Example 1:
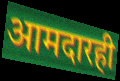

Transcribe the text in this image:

आमदारही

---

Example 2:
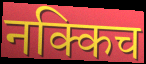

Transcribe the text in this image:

नक्किच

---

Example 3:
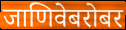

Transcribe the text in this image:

जाणिवेबरोबर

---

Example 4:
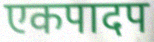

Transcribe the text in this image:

एकपादप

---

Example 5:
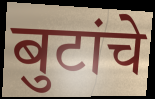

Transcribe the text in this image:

बुटांचे